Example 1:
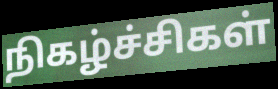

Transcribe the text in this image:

நிகழ்ச்சிகள்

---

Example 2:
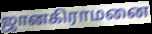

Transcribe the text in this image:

ஜானகிராமனை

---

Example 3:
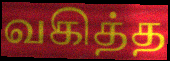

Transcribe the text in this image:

வகித்த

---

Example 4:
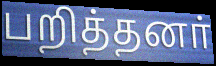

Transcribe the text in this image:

பறித்தனர்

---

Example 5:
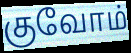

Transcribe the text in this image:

குவோம்